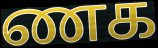
ணக